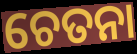
ଚେତନା